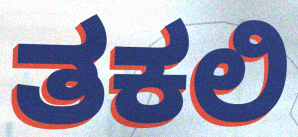
ತಕಲಿ